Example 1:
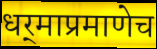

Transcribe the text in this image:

धर्माप्रमाणेच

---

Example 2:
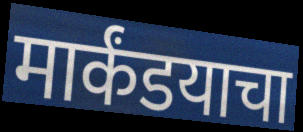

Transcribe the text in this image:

मार्कंडयाचा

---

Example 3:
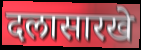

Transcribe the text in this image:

दलासारखे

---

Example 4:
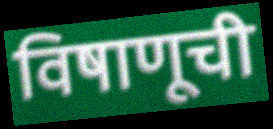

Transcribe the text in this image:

विषाणूची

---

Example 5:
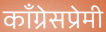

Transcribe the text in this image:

काँग्रेसप्रेमी